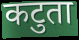
कटुता